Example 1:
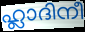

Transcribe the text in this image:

ഹ്ലാദിനീ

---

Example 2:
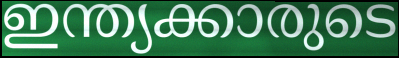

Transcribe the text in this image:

ഇന്ത്യക്കാരുടെ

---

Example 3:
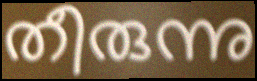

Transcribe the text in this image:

തീരുന്നു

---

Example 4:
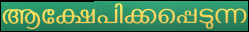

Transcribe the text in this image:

ആക്ഷേപിക്കപ്പെടുന്ന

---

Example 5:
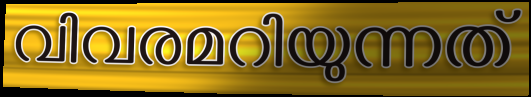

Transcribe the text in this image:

വിവരമറിയുന്നത്